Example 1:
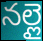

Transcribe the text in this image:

నల్లై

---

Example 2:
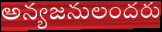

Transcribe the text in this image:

అన్యజనులందరు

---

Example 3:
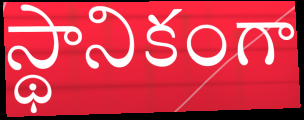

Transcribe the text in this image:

స్థానికంగా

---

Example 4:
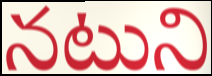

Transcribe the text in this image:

నటుని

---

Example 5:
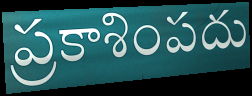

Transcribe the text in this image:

ప్రకాశింపదు